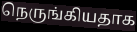
நெருங்கியதாக